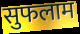
सुफलाम